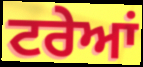
ਟਰੇਆਂ